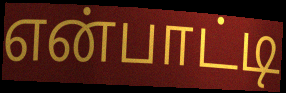
என்பாட்டி